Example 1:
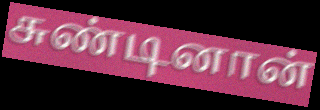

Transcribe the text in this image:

சுண்டினான்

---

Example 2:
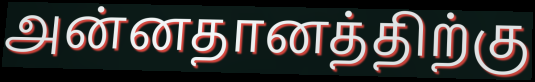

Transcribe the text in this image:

அன்னதானத்திற்கு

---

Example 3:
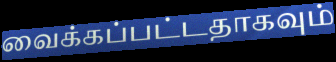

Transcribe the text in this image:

வைக்கப்பட்டதாகவும்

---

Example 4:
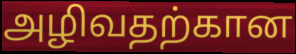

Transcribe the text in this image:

அழிவதற்கான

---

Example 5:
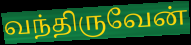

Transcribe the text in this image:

வந்திருவேன்